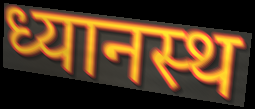
ध्यानस्थ